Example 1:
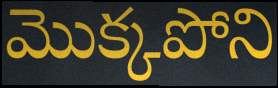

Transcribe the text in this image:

మొక్కపోని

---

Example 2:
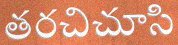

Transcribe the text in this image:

తరచిచూసి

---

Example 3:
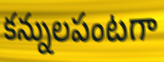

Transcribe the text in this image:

కన్నులపంటగా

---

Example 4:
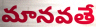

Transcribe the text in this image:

మానవతే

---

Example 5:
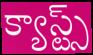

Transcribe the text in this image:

క్యాస్ట్స్